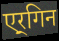
एर्गिन